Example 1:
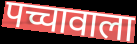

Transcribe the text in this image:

पच्चावाला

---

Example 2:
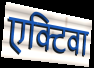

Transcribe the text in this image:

एक्टिवा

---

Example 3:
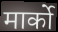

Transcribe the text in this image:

मार्को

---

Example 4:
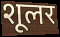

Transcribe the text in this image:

शूलर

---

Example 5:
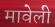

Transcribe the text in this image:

मावेली